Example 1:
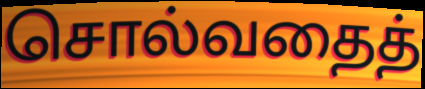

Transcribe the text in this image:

சொல்வதைத்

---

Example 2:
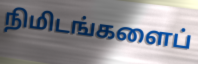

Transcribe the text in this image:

நிமிடங்களைப்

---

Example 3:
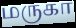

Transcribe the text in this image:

மருகா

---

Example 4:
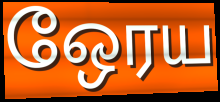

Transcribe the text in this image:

ஒேரய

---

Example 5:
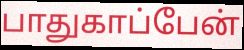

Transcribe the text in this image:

பாதுகாப்பேன்